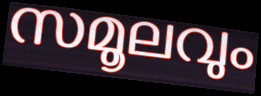
സമൂലവും